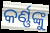
କର୍ଣ୍ଣଙ୍କୁ